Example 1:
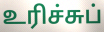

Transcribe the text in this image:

உரிச்சுப்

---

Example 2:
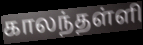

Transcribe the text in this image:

காலந்தள்ளி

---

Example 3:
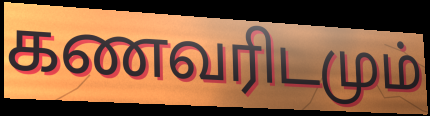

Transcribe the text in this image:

கணவரிடமும்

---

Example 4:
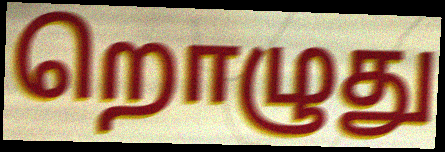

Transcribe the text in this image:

றொழுது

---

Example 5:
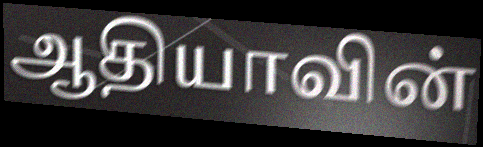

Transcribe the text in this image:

ஆதியாவின்